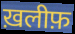
ख़लीफ़